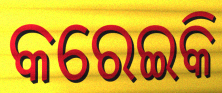
କରେଇକି